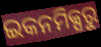
ଇକନମିକ୍ସରୁ